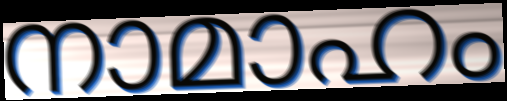
നാമാഹം